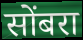
सोंबरा